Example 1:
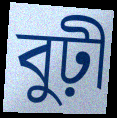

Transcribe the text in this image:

বুঢ়ী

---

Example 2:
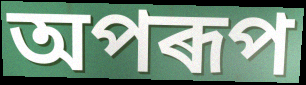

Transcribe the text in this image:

অপৰূপ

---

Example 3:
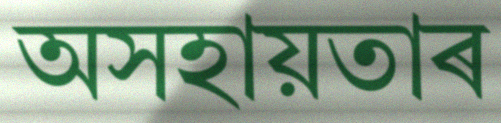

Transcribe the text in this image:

অসহায়তাৰ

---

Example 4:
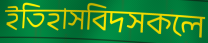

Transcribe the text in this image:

ইতিহাসবিদসকলে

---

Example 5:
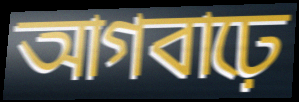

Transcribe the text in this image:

আগবাঢ়ে